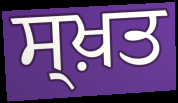
ਸ੍ਖ਼ਤ